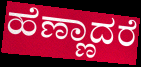
ಹೆಣ್ಣಾದರೆ